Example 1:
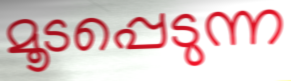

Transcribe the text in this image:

മൂടപ്പെടുന്ന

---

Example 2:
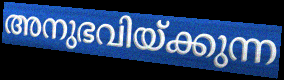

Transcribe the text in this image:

അനുഭവിയ്ക്കുന്ന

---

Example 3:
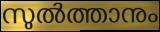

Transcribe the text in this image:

സുൽത്താനും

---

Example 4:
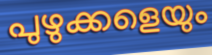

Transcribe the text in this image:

പുഴുക്കളെയും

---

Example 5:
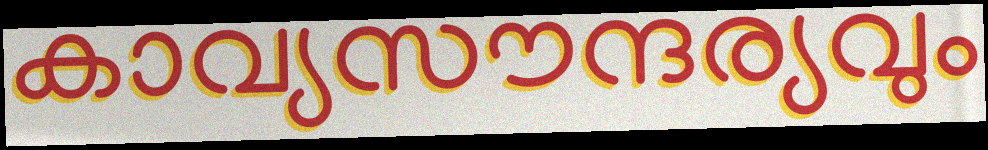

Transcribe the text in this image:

കാവ്യസൗന്ദര്യവും